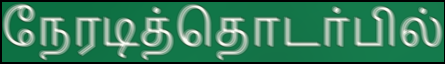
நேரடித்தொடர்பில்